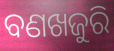
ବଣଖଜୁରି